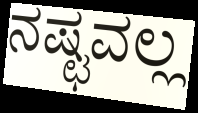
ನಷ್ಟವಲ್ಲ